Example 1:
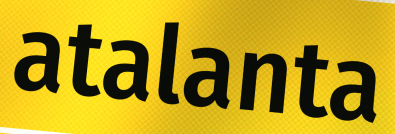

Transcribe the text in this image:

atalanta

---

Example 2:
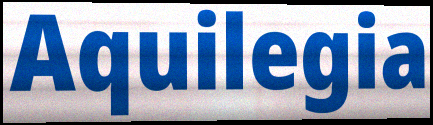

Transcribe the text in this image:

Aquilegia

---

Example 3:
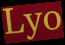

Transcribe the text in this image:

Lyo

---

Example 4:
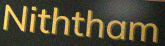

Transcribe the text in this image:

Niththam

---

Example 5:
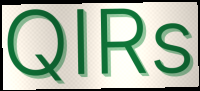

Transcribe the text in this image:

QIRs